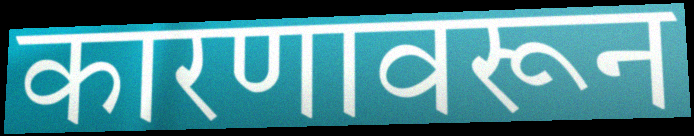
कारणावरून